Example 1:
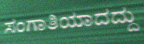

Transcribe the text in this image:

ಸಂಗಾತಿಯಾದದ್ದು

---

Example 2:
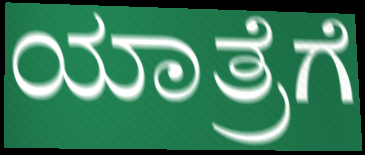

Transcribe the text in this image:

ಯಾತ್ರೆಗೆ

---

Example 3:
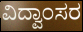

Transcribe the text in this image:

ವಿದ್ವಾಂಸರ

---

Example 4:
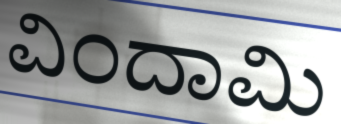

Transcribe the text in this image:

ವಿಂದಾಮಿ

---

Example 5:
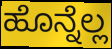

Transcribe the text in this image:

ಹೊನ್ನೆಲ್ಲ